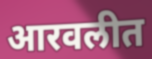
आरवलीत